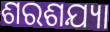
ଶରଶଯ୍ୟା